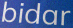
bidar